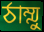
ঠাম্মু